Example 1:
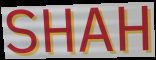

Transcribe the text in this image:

SHAH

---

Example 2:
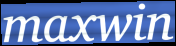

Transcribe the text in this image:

maxwin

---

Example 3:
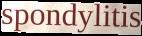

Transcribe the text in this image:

spondylitis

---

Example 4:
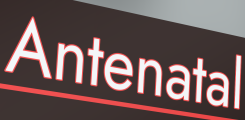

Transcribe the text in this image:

Antenatal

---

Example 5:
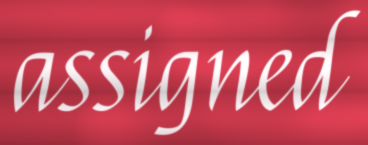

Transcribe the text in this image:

assigned